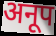
अनूप